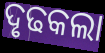
ଦୃଢକଲା